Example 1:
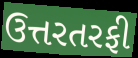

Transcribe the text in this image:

ઉત્તરતરફી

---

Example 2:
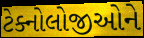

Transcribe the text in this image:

ટેક્નોલોજીઓને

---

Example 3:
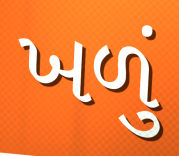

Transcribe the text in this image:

ખળું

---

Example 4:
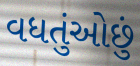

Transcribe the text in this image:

વધતુંઓછું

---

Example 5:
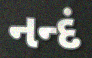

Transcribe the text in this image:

નન્દં